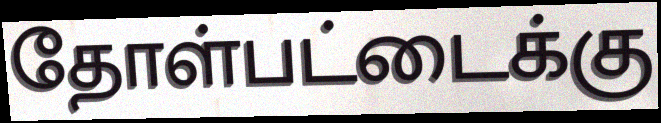
தோள்பட்டைக்கு